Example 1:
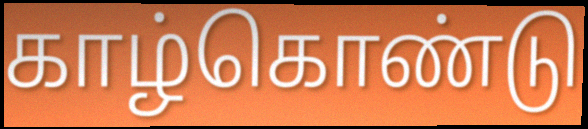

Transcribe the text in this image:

காழ்கொண்டு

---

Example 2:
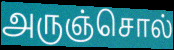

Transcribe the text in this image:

அருஞ்சொல்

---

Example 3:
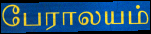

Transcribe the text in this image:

பேராலயம்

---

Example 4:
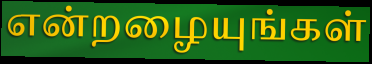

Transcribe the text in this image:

என்றழையுங்கள்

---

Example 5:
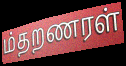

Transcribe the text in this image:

ம்தறணரள்